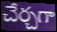
చేర్చగా